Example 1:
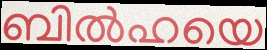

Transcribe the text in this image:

ബിൽഹയെ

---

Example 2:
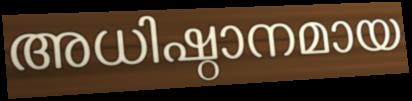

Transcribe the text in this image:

അധിഷ്ഠാനമായ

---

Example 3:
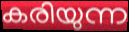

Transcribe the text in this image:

കരിയുന്ന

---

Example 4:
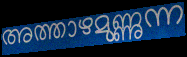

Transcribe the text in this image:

അത്താഴമുണ്ണുന്ന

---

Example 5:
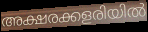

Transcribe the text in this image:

അക്ഷരക്കളരിയിൽ